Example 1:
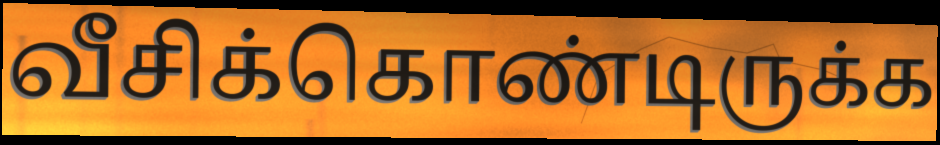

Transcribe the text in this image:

வீசிக்கொண்டிருக்க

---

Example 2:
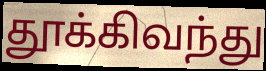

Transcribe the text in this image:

தூக்கிவந்து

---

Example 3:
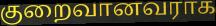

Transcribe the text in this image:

குறைவானவராக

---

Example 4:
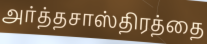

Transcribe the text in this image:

அர்த்தசாஸ்திரத்தை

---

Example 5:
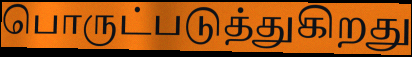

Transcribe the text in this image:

பொருட்படுத்துகிறது